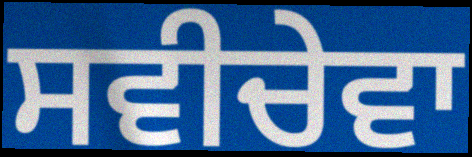
ਸਵੀਚੇਵਾ